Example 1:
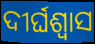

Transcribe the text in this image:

ଦୀର୍ଘଶ୍ବାସ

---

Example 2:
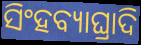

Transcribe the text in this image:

ସିଂହବ୍ୟାଘ୍ରାଦି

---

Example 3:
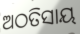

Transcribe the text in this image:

ଅଠତିସାୟ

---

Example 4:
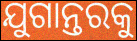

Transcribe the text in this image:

ଯୁଗାନ୍ତରକୁ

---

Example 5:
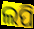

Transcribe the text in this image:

ଲପି